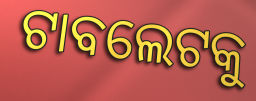
ଟାବଲେଟକୁ